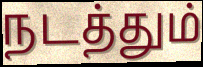
நடத்தும்